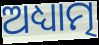
ଅଧ୍ୟାତ୍ମ